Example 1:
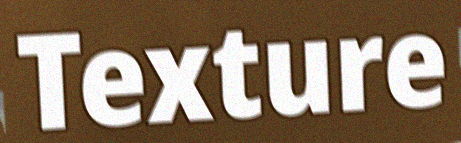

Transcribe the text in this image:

Texture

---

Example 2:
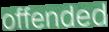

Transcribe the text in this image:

offended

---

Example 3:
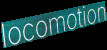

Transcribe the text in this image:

locomotion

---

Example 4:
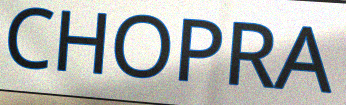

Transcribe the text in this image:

CHOPRA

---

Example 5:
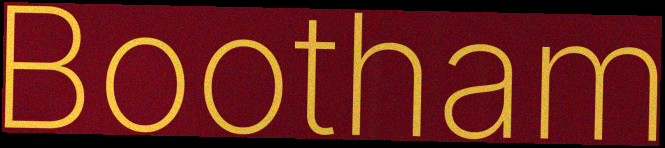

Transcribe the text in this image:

Bootham